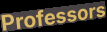
Professors